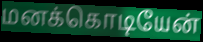
மனக்கொடியேன்